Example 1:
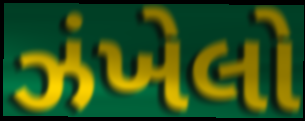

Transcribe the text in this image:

ઝંખેલો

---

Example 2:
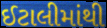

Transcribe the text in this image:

ઈટાલીમાંથી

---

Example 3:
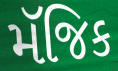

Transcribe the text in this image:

મૅજિક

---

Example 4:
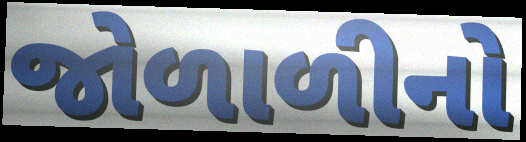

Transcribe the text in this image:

જોળાળીનો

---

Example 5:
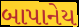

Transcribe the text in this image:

બાપાનેય